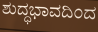
ಶುದ್ಧಭಾವದಿಂದ